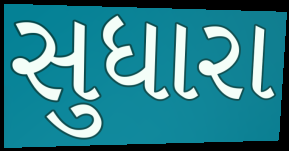
સુધારા